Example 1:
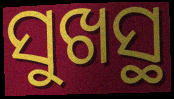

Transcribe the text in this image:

ସୁଖସ୍ଥ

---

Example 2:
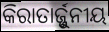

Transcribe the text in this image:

କିରାତାର୍ଜ୍ଜୁନୀୟ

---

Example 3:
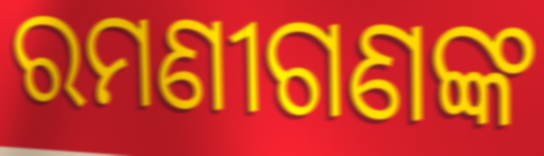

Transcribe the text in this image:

ରମଣୀଗଣଙ୍କ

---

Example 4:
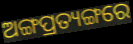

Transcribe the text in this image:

ଅଙ୍ଗପ୍ରତ୍ୟଙ୍ଗରେ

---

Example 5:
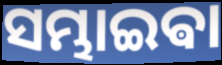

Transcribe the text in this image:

ସମ୍ଭାଇଵା